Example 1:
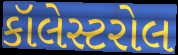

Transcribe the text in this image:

કૉલેસ્ટરોલ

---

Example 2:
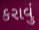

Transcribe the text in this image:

કરાવું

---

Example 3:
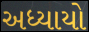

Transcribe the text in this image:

અધ્યાયો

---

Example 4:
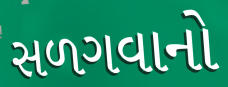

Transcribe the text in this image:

સળગવાનો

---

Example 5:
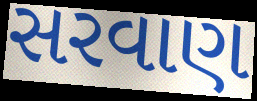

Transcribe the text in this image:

સરવાણ